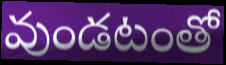
వుండటంతో